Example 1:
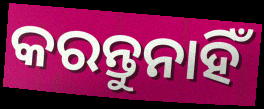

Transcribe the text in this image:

କରନ୍ତୁନାହିଁ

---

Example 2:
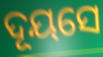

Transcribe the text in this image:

ଦୂୟସେ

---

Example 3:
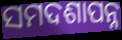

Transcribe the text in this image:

ସମଦଶାପନ୍ନ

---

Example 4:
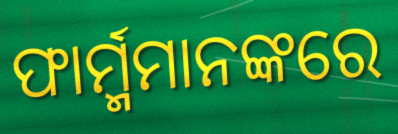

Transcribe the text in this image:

ଫାର୍ମ୍ମମାନଙ୍କରେ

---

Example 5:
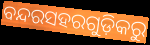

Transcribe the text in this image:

ବନ୍ଦରସହରଗୁଡ଼ିକରୁ